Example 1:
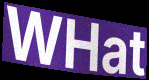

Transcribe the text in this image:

WHat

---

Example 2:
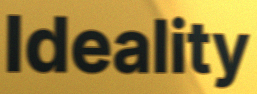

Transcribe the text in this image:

Ideality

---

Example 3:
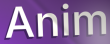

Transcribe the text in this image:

Anim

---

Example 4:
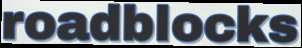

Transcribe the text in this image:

roadblocks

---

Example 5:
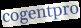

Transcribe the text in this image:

cogentpro